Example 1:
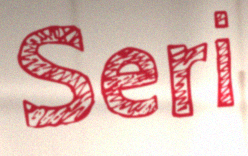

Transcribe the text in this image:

Seri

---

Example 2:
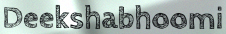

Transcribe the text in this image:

Deekshabhoomi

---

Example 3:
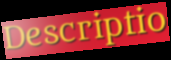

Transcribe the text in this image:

Descriptio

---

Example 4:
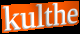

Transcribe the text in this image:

kulthe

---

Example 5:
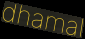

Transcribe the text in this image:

dhamal